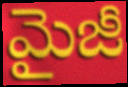
మైజీ